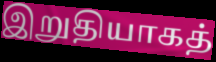
இறுதியாகத்